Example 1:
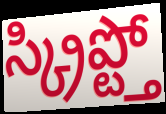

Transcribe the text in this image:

స్క్రిప్ట్తో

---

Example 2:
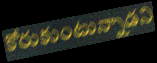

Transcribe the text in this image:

కోరుకుంటున్నాడని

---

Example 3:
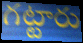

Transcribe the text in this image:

గట్టారు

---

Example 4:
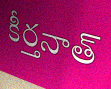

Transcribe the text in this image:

కీర్తనాత్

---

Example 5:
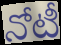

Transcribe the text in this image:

నోటీ